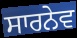
ਸਾਰਨੇਵ